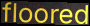
floored